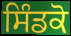
ਸਿੰਡਕੋ